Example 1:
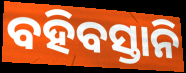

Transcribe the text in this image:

ବହିବସ୍ତାନି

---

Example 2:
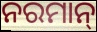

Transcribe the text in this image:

ନରମାନ୍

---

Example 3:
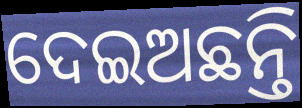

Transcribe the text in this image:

ଦେଇଅଛନ୍ତି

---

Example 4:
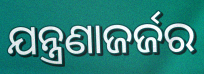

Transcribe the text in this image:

ଯନ୍ତ୍ରଣାଜର୍ଜର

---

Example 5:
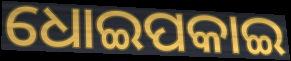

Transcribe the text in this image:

ଧୋଇପକାଇ